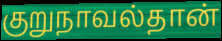
குறுநாவல்தான்